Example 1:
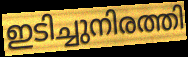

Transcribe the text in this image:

ഇടിച്ചുനിരത്തി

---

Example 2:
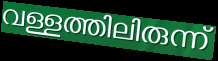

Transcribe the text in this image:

വള്ളത്തിലിരുന്ന്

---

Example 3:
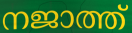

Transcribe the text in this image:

നജാത്ത്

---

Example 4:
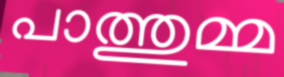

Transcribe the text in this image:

പാത്തുമ്മ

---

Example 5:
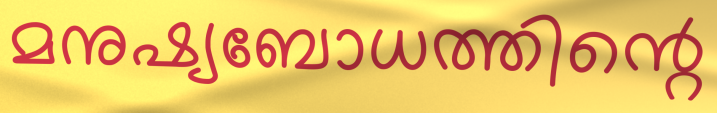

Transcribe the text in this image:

മനുഷ്യബോധത്തിന്റെ